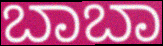
ಬಾಬಾ